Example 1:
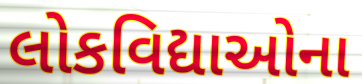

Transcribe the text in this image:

લોકવિદ્યાઓના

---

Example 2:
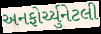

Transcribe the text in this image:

અનફોર્ચ્યુનેટલી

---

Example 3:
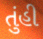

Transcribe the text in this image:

તુંહી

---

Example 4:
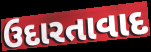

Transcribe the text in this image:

ઉદારતાવાદ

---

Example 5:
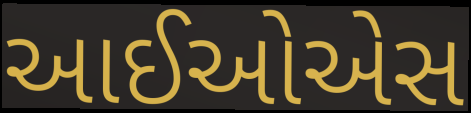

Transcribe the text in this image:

આઈઓએસ